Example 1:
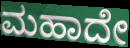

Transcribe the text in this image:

ಮಹಾದೇ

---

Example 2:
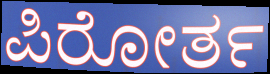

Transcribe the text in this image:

ಪಿರೋರ್ತ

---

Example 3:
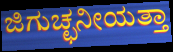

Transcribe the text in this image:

ಜಿಗುಚ್ಛನೀಯತ್ತಾ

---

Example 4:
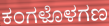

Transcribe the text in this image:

ಕಂಗಳೊಳಗಣ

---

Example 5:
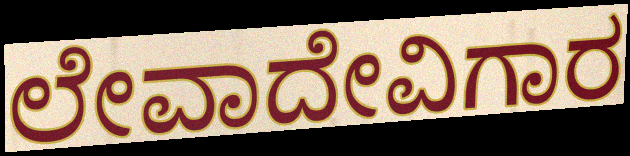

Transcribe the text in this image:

ಲೇವಾದೇವಿಗಾರ